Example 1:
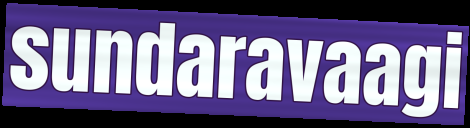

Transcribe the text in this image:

sundaravaagi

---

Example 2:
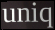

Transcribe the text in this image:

uniq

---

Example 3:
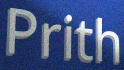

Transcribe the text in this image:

Prith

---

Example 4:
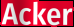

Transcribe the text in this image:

Acker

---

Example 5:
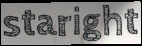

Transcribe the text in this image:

staright